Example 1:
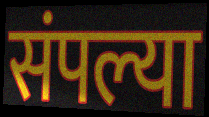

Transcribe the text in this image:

संपल्या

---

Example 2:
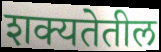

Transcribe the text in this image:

शक्यतेतील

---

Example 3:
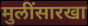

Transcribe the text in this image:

मुलींसारखा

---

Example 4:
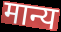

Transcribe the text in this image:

मान्य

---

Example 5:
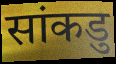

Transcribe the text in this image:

सांकडु